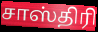
சாஸ்திரி